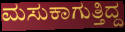
ಮಸುಕಾಗುತ್ತಿದ್ದ